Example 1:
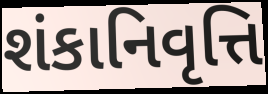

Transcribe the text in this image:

શંકાનિવૃત્તિ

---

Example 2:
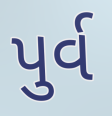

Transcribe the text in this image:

પુર્વ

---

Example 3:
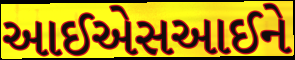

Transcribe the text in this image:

આઈએસઆઈને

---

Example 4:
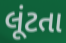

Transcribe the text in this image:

લૂંટતા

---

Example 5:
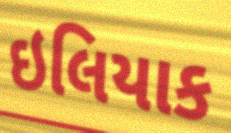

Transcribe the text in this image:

ઇલિયાક